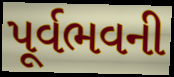
પૂર્વભવની